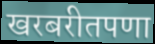
खरबरीतपणा